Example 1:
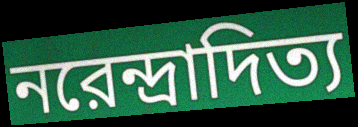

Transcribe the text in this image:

নরেন্দ্রাদিত্য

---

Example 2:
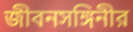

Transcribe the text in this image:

জীবনসঙ্গিনীর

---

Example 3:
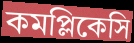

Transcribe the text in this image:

কমপ্লিকেসি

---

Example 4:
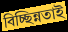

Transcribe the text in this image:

বিচ্ছিন্নতাই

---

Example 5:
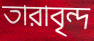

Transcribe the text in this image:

তারাবৃন্দ